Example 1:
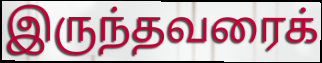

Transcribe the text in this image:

இருந்தவரைக்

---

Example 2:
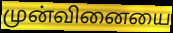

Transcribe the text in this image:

முன்வினையை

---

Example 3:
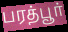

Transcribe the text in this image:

பரத்பூர்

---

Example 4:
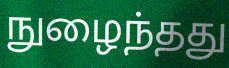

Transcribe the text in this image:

நுழைந்தது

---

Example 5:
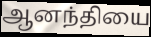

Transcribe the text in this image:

ஆனந்தியை